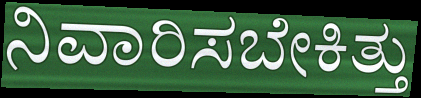
ನಿವಾರಿಸಬೇಕಿತ್ತು